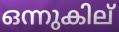
ഒന്നുകില്